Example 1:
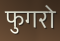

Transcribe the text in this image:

फुगरो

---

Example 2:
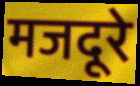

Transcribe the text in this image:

मजदूरे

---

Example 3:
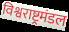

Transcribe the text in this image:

विश्वराष्ट्रमंडल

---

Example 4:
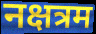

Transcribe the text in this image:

नक्षत्रम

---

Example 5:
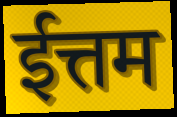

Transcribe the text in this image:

ईत्तम